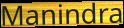
Manindra